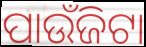
ପାଉଁଜିଟା